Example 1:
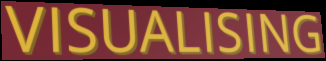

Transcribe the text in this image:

VISUALISING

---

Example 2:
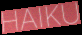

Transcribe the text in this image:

HAIKU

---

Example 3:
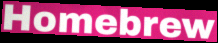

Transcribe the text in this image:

Homebrew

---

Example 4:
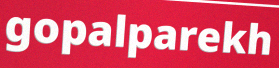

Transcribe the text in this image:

gopalparekh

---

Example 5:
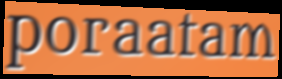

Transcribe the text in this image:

poraatam